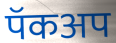
पॅकअप